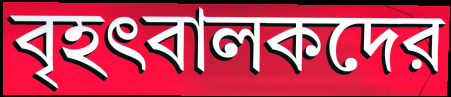
বৃহৎবালকদের